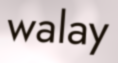
walay